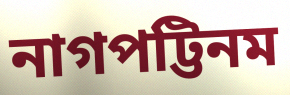
নাগপট্টিনম